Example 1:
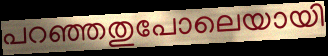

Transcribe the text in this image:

പറഞ്ഞതുപോലെയായി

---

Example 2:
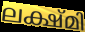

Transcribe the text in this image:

ലക്ഷ്‌മി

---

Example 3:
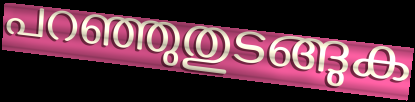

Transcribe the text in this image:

പറഞ്ഞുതുടങ്ങുക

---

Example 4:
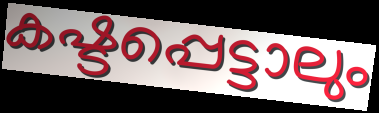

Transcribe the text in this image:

കഷ്ടപ്പെട്ടാലും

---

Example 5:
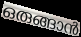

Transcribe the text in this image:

ഒരുങ്ങാൻ